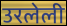
उरलेली